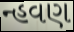
ન્હવણ